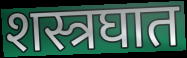
शस्त्रघात